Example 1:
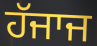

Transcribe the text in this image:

ਹੱਜਾਜ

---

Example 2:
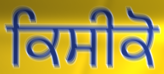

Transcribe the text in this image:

ਕਿਸੀਕੋ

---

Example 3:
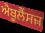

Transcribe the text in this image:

ਐਬੂਲੈਂਸਜ਼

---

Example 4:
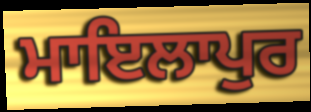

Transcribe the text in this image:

ਮਾਇਲਾਪੁਰ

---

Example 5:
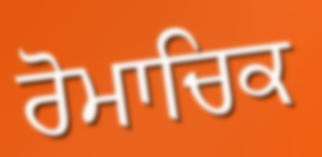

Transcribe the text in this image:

ਰੋਮਾਚਿਕ